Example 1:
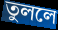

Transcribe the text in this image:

তুললে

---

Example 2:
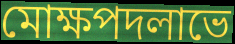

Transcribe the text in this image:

মোক্ষপদলাভে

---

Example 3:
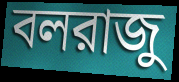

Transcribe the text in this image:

বলরাজু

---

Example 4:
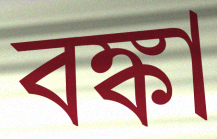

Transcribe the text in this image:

বঙ্কা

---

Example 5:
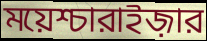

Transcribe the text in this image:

ময়েশ্চারাইজ়ার